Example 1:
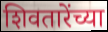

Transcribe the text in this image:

शिवतारेंच्या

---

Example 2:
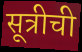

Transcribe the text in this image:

सूत्रीची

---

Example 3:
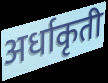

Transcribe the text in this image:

अर्धाकृती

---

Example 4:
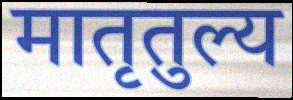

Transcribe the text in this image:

मातृतुल्य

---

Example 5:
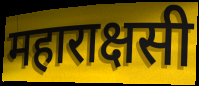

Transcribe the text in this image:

महाराक्षसी